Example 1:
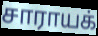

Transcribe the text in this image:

சாராயக்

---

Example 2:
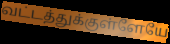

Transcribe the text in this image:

வட்டத்துக்குள்ளேயே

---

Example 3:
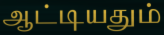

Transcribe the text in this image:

ஆட்டியதும்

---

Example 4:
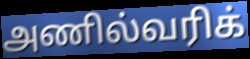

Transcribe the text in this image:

அணில்வரிக்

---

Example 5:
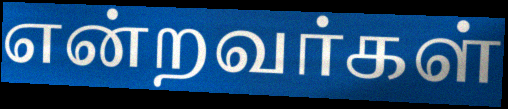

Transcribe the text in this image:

என்றவர்கள்